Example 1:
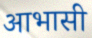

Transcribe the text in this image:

आभासी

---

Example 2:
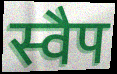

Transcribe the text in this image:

स्वैप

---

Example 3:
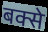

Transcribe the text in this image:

बक्से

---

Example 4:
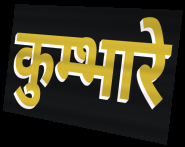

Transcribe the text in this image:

कुम्भारे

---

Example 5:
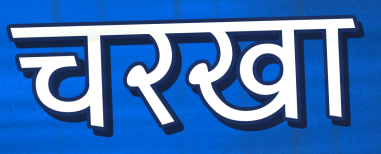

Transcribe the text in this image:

चरखा